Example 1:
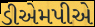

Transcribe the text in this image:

ડીએમપીએ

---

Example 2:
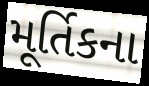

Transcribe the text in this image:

મૂર્તિકના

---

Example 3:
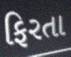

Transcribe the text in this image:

ફિરતા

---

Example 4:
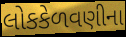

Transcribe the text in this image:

લોકકેળવણીના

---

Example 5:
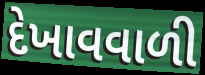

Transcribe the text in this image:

દેખાવવાળી